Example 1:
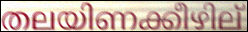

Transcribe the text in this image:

തലയിണക്കീഴില്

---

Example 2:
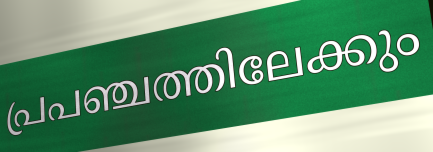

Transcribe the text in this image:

പ്രപഞ്ചത്തിലേക്കും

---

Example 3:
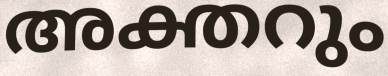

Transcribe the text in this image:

അക്തറും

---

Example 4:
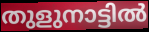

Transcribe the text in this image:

തുളുനാട്ടിൽ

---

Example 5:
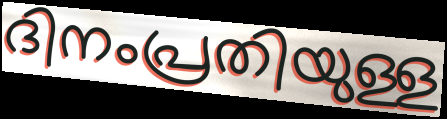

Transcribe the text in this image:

ദിനംപ്രതിയുള്ള